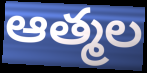
ఆత్మల